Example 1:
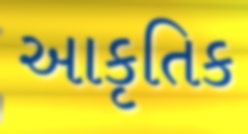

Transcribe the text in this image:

આકૃતિક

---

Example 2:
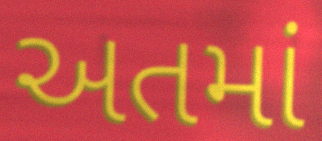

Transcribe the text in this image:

અતમાં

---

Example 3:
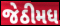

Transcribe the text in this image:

જેઠીમધ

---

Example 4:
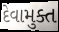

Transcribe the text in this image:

દેવામુક્ત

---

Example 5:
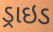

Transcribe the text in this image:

ડ્રાઇડ